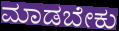
ಮಾಡಬೇಕು